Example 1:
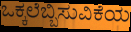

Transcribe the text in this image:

ಒಕ್ಕಲೆಬ್ಬಿಸುವಿಕೆಯ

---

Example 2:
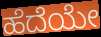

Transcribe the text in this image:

ಹೆದೆಯೇ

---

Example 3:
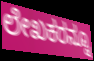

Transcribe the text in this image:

ಲೇಖಕರನ್ನೂ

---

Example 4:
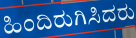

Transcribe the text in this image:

ಹಿಂದಿರುಗಿಸಿದರು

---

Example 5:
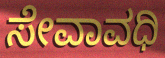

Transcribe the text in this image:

ಸೇವಾವಧಿ